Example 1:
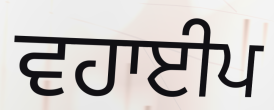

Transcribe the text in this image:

ਵਹਾਈਪ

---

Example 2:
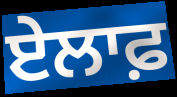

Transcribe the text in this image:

ਏਲਾਫ਼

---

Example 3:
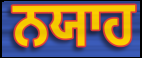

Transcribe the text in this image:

ਨਯਾਹ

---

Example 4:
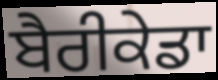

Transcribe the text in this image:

ਬੈਰੀਕੇਡਾ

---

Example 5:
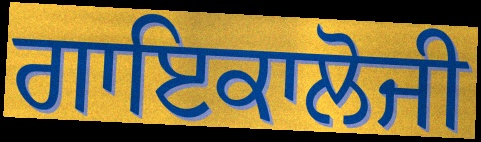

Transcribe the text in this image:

ਗਾਇਕਾਲੋਜੀ